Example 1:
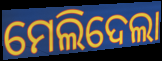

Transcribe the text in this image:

ମେଲିଦେଲା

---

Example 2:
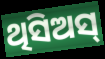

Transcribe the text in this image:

ଥିସିଅସ୍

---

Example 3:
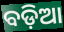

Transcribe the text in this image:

ବଡ଼ିଆ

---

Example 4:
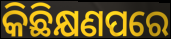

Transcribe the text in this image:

କିଛିକ୍ଷଣପରେ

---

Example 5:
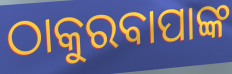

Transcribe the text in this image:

ଠାକୁରବାପାଙ୍କ